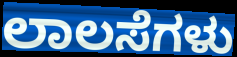
ಲಾಲಸೆಗಳು